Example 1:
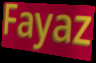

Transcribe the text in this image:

Fayaz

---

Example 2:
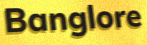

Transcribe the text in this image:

Banglore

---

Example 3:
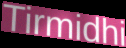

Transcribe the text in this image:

Tirmidhi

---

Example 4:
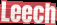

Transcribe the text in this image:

Leech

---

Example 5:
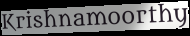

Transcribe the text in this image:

Krishnamoorthy